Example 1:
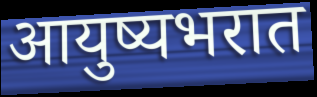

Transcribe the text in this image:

आयुष्यभरात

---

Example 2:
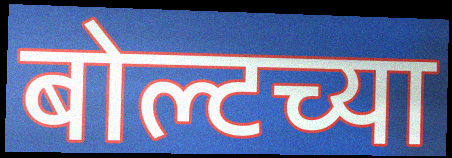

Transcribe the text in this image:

बोल्टच्या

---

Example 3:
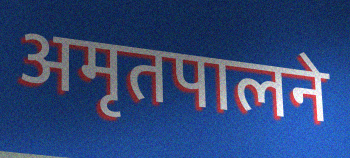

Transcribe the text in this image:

अमृतपालने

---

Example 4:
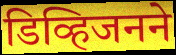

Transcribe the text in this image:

डिव्हिजनने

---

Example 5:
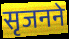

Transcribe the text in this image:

सृजनने